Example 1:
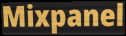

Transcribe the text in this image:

Mixpanel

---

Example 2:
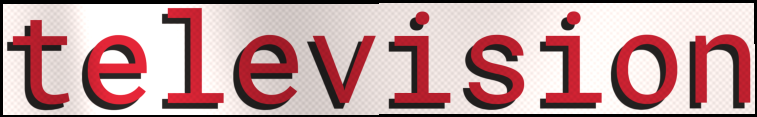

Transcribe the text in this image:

television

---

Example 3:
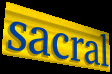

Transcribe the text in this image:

sacral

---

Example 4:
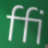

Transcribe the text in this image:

ffi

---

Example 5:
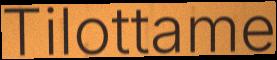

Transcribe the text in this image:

Tilottame